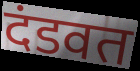
दंडवत